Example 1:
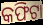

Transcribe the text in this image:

କଫିଟା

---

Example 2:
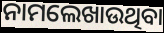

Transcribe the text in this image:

ନାମଲେଖାଉଥିବା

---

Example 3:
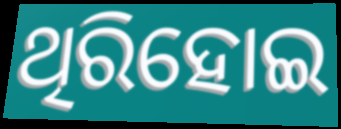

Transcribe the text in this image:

ଥିରିହୋଇ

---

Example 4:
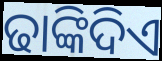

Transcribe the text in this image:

ଢାଙ୍କିଦିଏ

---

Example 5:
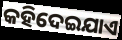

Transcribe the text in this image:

କହିଦେଇଯାଏ